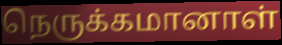
நெருக்கமானாள்